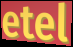
etel